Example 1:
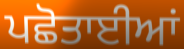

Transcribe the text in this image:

ਪਛੋਤਾਈਆਂ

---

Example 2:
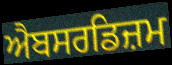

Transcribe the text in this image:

ਐਬਸਰਡਿਜ਼ਮ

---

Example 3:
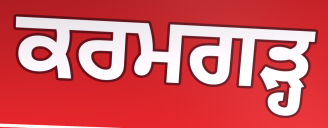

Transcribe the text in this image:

ਕਰਮਗੜ੍ਹ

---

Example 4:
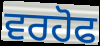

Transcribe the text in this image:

ਵਰਹੋਫ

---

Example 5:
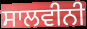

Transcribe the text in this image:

ਸਾਲਵੀਨੀ